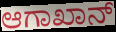
ಆಗಾಖಾನ್